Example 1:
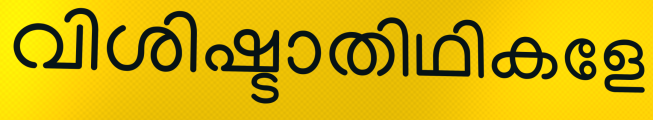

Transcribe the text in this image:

വിശിഷ്ടാതിഥികളേ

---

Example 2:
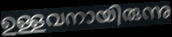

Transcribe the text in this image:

ഉള്ളവനായിരുന്നു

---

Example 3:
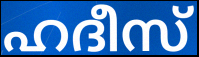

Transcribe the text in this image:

ഹദീസ്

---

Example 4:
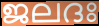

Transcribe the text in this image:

ജലദഃ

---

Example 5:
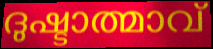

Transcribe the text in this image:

ദുഷ്ടാത്മാവ്